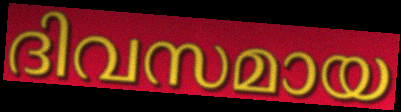
ദിവസമായ